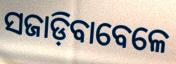
ସଜାଡ଼ିବାବେଳେ